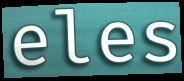
eles